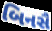
બિનસૈ